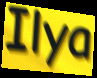
Ilya